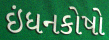
ઇંધનકોષો